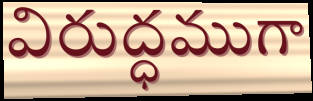
విరుద్ధముగా